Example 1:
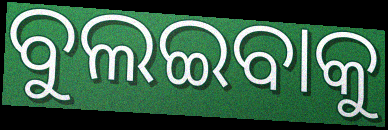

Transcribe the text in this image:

ବୁଲଇବାକୁ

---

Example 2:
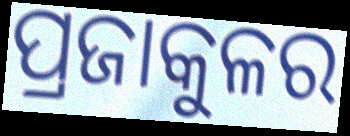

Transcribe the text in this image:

ପ୍ରଜାକୁଳର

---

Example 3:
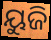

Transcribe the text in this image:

ୟୁଜି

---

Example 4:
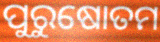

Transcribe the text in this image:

ପୁରୁଷୋତମ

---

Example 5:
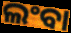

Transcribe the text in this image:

ଲଂବା